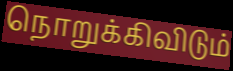
நொறுக்கிவிடும்